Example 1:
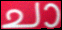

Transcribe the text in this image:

ചാ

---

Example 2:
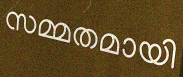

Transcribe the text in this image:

സമ്മതമായി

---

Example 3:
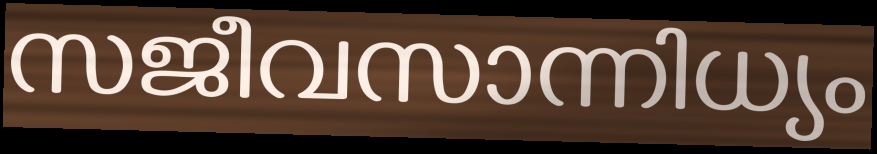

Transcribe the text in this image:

സജീവസാന്നിധ്യം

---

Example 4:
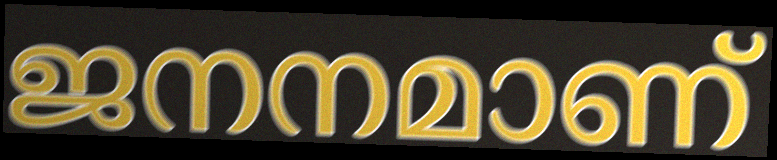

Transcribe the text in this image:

ജനനമാണ്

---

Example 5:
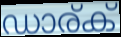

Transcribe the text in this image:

ഡാര്ക്